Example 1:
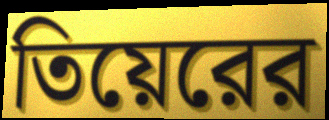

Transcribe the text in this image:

তিয়েরের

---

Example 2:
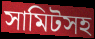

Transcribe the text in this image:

সামিটসহ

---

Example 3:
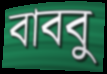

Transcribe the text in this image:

বাববু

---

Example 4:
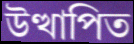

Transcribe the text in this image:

উত্থাপিত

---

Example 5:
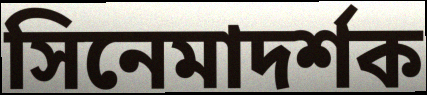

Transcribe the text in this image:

সিনেমাদর্শক